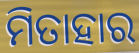
ମିତାହାର